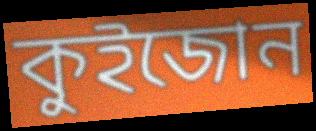
কুইজোন